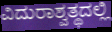
ವಿದುರಾಶ್ವತ್ಥದಲ್ಲಿ